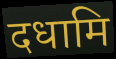
दधामि